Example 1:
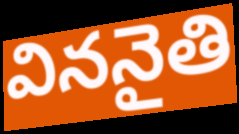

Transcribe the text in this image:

విననైతి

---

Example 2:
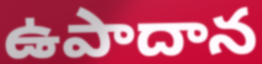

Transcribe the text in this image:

ఉపాదాన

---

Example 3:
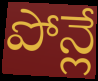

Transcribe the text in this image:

పోన్లే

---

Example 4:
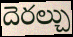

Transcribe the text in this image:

దెరల్చు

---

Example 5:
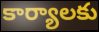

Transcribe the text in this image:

కార్యాలకు